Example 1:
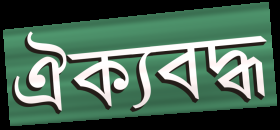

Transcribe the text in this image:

ঐক্যবদ্ধ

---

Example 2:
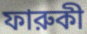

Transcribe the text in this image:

ফারুকী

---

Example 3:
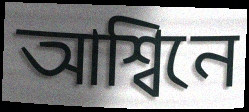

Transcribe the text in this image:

আশ্বিনে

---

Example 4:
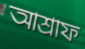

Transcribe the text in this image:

আশ্রাফ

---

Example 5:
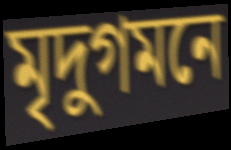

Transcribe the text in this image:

মৃদুগমনে